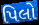
પિલો